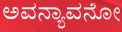
ಅವನ್ಯಾವನೋ